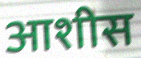
आशीस